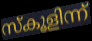
സ്കൂളിന്ന്